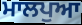
ਮਾਲਪੁਆ